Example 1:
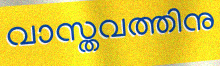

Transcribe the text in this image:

വാസ്തവത്തിനു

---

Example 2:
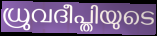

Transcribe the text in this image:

ധ്രുവദീപ്തിയുടെ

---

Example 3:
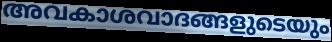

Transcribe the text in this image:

അവകാശവാദങ്ങളുടെയും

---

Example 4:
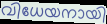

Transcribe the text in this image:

വിധേയനായി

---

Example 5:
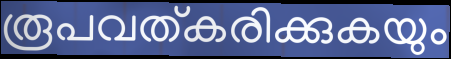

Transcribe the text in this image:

രൂപവത്കരിക്കുകയും